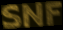
SNF